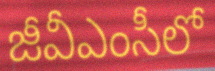
జీవీఎంసీలో